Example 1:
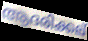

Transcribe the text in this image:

ആദരിക്കല്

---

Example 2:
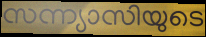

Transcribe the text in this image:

സന്ന്യാസിയുടെ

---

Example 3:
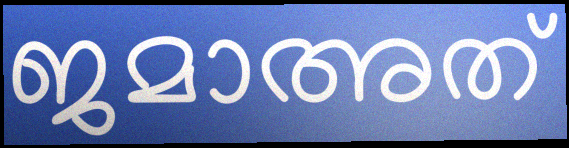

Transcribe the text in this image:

ജമാഅത്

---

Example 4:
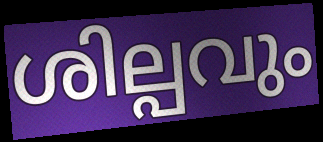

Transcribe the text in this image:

ശില്പവും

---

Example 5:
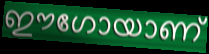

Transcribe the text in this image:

ഈഗോയാണ്